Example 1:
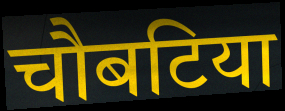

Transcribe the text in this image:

चौबटिया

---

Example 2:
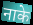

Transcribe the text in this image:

नाके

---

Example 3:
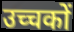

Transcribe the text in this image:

उच्चकों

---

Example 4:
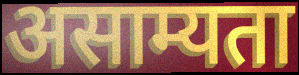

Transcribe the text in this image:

असाम्यता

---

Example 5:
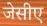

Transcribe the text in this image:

जेसीए